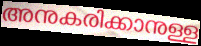
അനുകരിക്കാനുള്ള